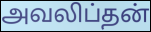
அவலிப்தன்